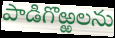
పాడిగొఱ్ఱలను